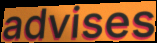
advises